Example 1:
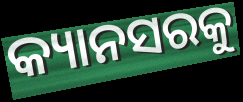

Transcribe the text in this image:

କ୍ୟାନସରକୁ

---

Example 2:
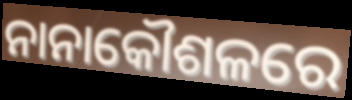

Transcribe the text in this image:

ନାନାକୌଶଳରେ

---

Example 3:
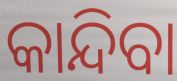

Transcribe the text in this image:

କାନ୍ଦିବା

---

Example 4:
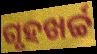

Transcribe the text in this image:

ଗୃହଖର୍ଚ୍ଚ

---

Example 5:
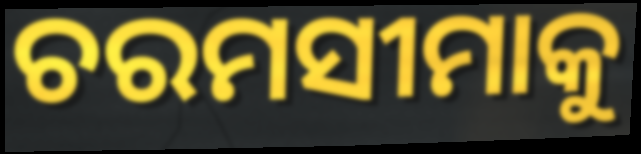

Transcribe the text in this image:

ଚରମସୀମାକୁ